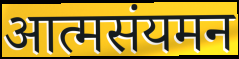
आत्मसंयमन